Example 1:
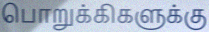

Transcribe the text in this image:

பொறுக்கிகளுக்கு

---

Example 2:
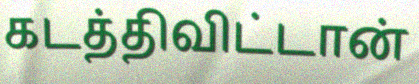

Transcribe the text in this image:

கடத்திவிட்டான்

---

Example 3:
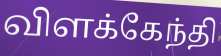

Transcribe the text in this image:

விளக்கேந்தி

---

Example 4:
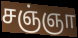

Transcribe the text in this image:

சஞ்ஞா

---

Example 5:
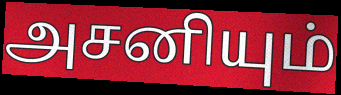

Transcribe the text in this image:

அசனியும்